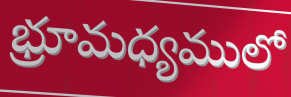
భ్రూమధ్యములో